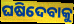
ଘଷିଦେବାକୁ